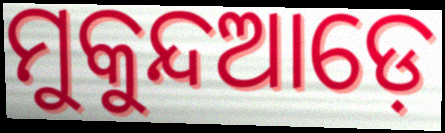
ମୁକୁନ୍ଦଆଡ଼େ